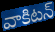
వాకిటన్